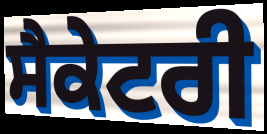
ਸੈਕੇਟਰੀ